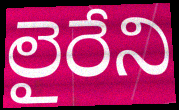
లైరేని